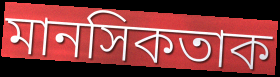
মানসিকতাক